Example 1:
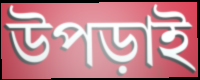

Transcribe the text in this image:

উপড়াই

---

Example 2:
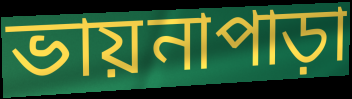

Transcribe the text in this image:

ভায়নাপাড়া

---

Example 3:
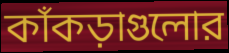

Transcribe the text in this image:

কাঁকড়াগুলোর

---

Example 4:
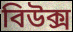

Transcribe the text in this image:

বিউক্স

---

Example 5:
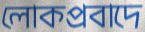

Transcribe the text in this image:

লোকপ্রবাদে